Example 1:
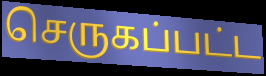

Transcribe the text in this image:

செருகப்பட்ட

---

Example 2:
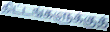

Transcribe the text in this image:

திட்டங்களுக்குத்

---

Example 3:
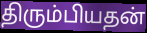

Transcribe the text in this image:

திரும்பியதன்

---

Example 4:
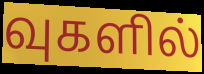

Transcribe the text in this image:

வுகளில்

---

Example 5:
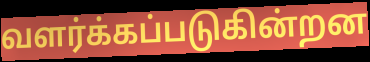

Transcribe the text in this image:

வளர்க்கப்படுகின்றன